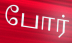
போர்